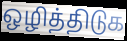
ஒழித்திடுக